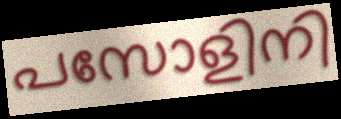
പസോളിനി